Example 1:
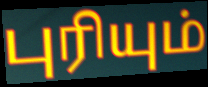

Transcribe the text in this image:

புரியும்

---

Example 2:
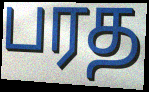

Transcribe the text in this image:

பரத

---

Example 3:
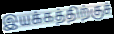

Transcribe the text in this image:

இயக்கத்திற்குச்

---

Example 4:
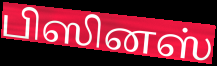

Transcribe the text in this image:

பிஸினஸ்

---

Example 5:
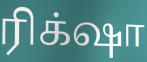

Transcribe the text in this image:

ரிக்‌ஷா